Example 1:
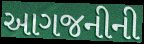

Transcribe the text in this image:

આગજનીની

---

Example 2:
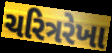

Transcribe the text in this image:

ચરિત્રરેખા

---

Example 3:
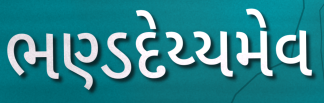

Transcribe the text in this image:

ભણ્ડદેય્યમેવ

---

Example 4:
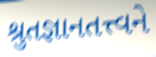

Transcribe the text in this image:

શ્રુતજ્ઞાનતત્ત્વને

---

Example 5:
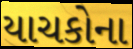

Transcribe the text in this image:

યાચકોના